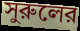
সুরুলের